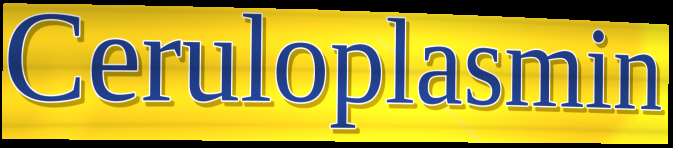
Ceruloplasmin